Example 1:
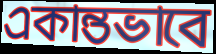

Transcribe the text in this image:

একান্তভাবে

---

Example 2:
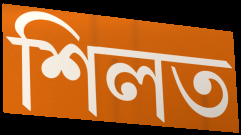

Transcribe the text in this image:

শিলত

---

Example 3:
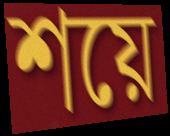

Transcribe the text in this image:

শয়ে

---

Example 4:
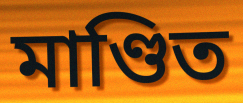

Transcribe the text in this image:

মাণ্ডিত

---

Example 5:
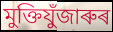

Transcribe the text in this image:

মুক্তিযুঁজাৰুৰ